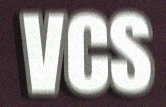
VCS